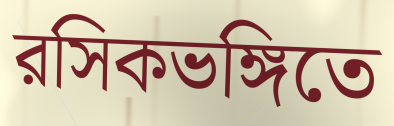
রসিকভঙ্গিতে